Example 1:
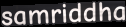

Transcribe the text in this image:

samriddha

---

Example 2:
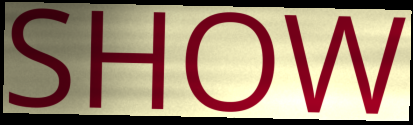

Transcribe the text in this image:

SHOW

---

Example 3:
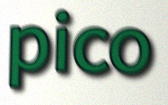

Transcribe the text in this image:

pico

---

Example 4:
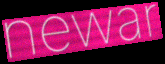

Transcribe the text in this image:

newar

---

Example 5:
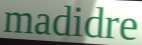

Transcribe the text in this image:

madidre